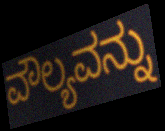
ವೌಲ್ಯವನ್ನು